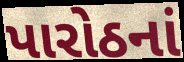
પારોઠનાં